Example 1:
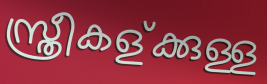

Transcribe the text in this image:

സ്ത്രീകള്ക്കുള്ള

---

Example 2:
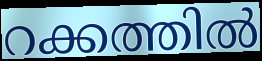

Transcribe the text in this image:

റക്കത്തിൽ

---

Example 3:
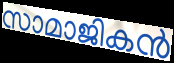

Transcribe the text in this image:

സാമാജികൻ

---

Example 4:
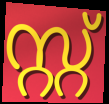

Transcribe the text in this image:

സ്റ്റ്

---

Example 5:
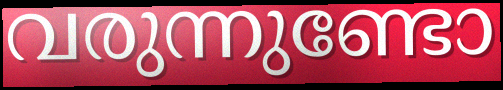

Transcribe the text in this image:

വരുന്നുണ്ടോ